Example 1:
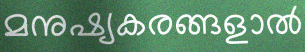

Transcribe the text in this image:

മനുഷ്യകരങ്ങളാൽ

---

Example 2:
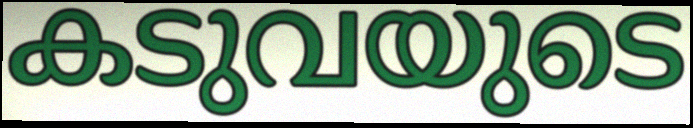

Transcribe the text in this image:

കടുവയുടെ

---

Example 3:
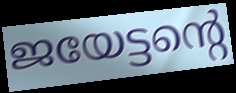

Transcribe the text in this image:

ജയേട്ടന്റെ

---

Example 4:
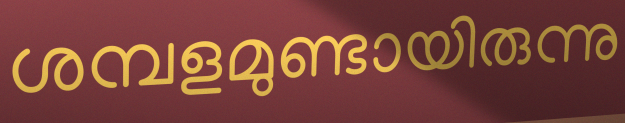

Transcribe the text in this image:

ശമ്പളമുണ്ടായിരുന്നു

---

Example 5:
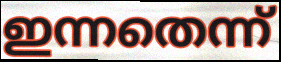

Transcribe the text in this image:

ഇന്നതെന്ന്